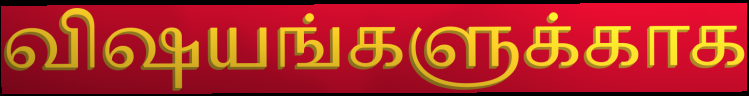
விஷயங்களுக்காக